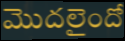
మొదలైందో